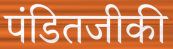
पंडितजीकी